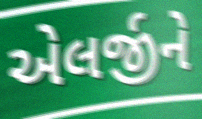
એલર્જીને